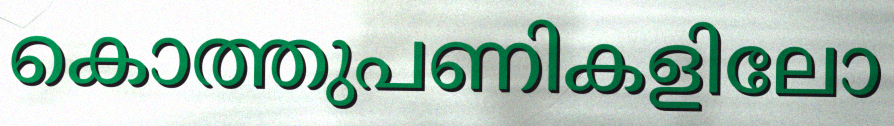
കൊത്തുപണികളിലോ